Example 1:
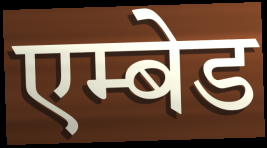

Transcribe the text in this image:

एम्बेड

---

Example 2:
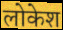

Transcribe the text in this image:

लोकेश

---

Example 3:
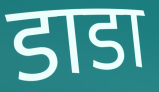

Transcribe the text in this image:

डाडा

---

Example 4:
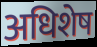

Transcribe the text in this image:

अधिशेष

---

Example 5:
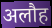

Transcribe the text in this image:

अलौह